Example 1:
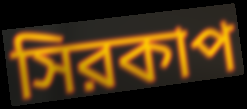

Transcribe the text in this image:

সিরকাপ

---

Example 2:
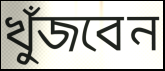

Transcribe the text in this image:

খুঁজবেন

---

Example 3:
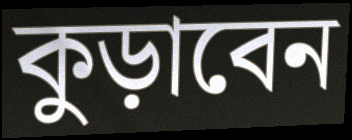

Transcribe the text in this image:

কুড়াবেন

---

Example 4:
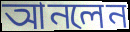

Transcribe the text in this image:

আনলেন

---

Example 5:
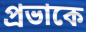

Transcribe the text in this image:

প্রভাকে